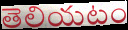
తెలియటం